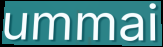
ummai